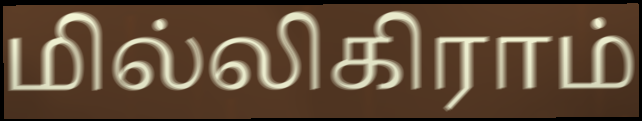
மில்லிகிராம்